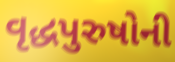
વૃદ્ધપુરુષોની